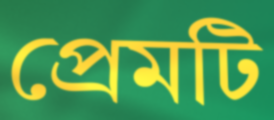
প্রেমটি